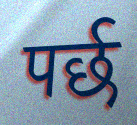
पर्छ